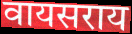
वायसराय